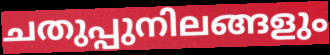
ചതുപ്പുനിലങ്ങളും